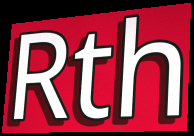
Rth